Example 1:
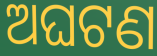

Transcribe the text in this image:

ଅଘଟଣ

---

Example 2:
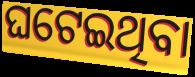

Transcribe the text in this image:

ଘଟେଇଥିବା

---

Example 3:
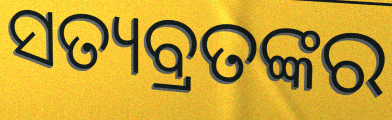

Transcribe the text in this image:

ସତ୍ୟବ୍ରତଙ୍କର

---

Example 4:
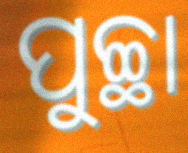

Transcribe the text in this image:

ପୁଚ୍ଛା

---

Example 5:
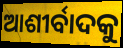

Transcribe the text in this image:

ଆଶୀର୍ବାଦକୁ